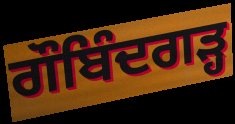
ਗੌਬਿੰਦਗੜ੍ਹ